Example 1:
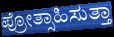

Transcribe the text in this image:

ಪ್ರೋತ್ಸಾಹಿಸುತ್ತಾ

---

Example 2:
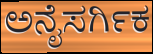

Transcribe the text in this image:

ಅನೈಸರ್ಗಿಕ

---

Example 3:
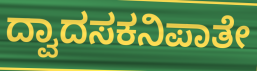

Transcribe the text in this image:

ದ್ವಾದಸಕನಿಪಾತೇ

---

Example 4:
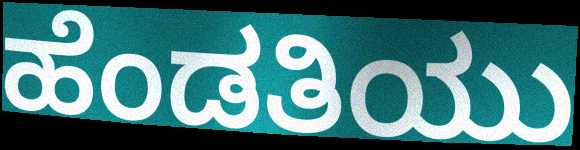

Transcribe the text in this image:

ಹೆಂಡತಿಯು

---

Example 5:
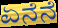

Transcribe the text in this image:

ಏನೆನೆ